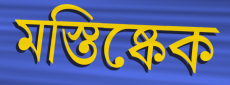
মস্তিষ্কেক